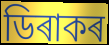
ডিৰাকৰ